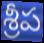
శ్రీప